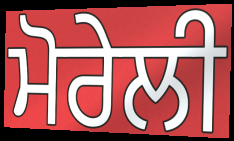
ਮੋਰੇਲੀ